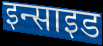
इन्साइड